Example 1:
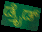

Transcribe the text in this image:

ಡ್ರೈಡ್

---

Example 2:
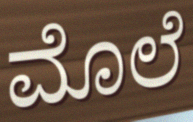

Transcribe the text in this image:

ಮೊಲೆ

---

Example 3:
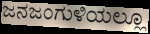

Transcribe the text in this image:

ಜನಜಂಗುಳಿಯಲ್ಲೂ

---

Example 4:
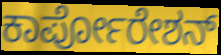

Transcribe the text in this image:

ಕಾರ್ಪೋರೇಶನ್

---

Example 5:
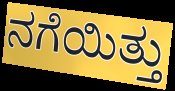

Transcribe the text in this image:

ನಗೆಯಿತ್ತು